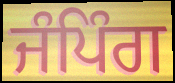
ਜੰਪਿੰਗ